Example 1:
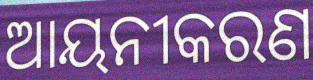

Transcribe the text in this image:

ଆୟନୀକରଣ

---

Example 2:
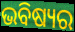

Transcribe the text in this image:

ଭବିଷ୍ୟର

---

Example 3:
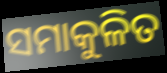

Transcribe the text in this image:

ସମାକୁଳିତ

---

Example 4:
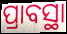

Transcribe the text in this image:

ପ୍ରାବସ୍ଥା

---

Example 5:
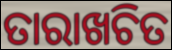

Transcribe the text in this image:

ତାରାଖଚିତ